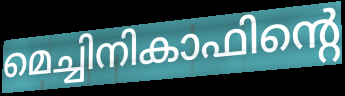
മെച്ചിനികാഫിന്റെ